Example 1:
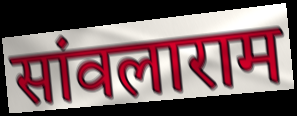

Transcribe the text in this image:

सांवलाराम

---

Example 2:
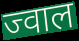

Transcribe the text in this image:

ज्वाल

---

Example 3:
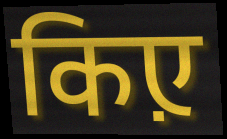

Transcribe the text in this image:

किए़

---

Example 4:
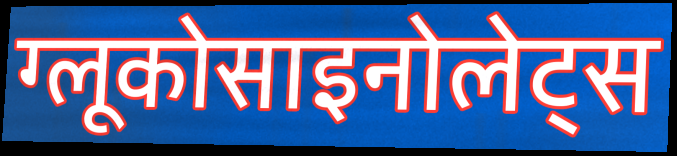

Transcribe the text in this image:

ग्लूकोसाइनोलेट्स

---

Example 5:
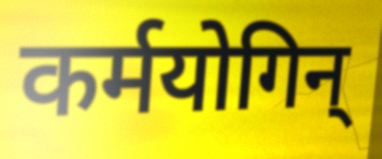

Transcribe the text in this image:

कर्मयोगिन्